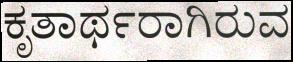
ಕೃತಾರ್ಥರಾಗಿರುವ